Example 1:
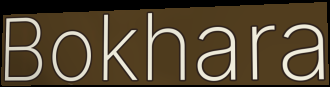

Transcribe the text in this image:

Bokhara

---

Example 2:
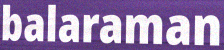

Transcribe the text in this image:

balaraman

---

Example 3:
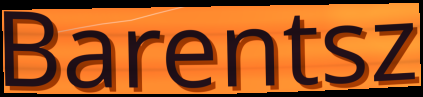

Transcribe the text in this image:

Barentsz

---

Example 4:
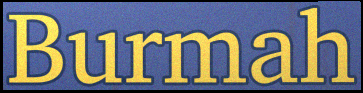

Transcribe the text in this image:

Burmah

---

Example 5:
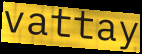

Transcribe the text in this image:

vattay